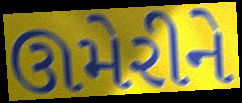
ઊમેરીને